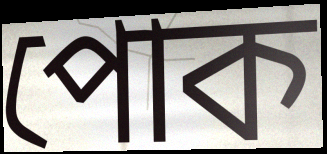
পোক